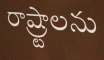
రాష్ర్టాలను